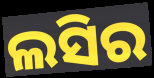
ଲସିର